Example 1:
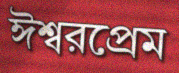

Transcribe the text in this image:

ঈশ্বরপ্রেম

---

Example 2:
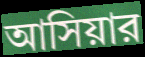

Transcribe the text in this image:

আসিয়ার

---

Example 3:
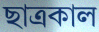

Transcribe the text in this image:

ছাত্রকাল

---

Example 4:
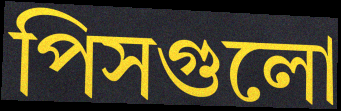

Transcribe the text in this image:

পিসগুলো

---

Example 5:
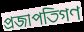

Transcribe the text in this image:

প্রজাপতিগণ